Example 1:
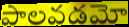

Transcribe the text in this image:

పాలవడమో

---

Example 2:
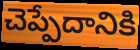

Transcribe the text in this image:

చెప్పేదానికి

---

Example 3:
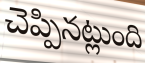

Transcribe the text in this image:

చెప్పినట్లుంది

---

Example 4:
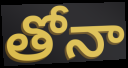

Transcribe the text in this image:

తోనా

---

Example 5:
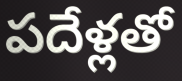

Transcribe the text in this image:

పదేళ్లతో